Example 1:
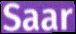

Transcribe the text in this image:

Saar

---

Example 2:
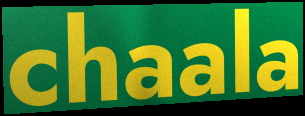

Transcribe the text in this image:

chaala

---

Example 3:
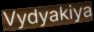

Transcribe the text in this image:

Vydyakiya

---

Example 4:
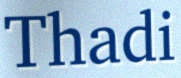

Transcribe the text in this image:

Thadi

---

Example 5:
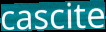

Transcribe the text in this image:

cascite